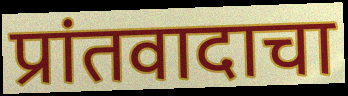
प्रांतवादाचा